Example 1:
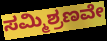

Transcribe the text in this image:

ಸಮ್ಮಿಶ್ರಣವೇ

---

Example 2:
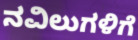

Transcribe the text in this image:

ನವಿಲುಗಳಿಗೆ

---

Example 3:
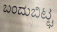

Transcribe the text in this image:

ಬಂದುಬಿಟ್ಟ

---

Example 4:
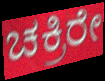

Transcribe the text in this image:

ಚಕ್ರಿರೇ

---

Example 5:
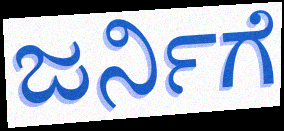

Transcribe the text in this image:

ಜರ್ನಿಗೆ